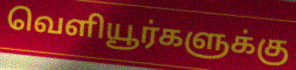
வெளியூர்களுக்கு